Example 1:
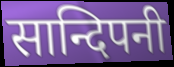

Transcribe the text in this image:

सान्दिपनी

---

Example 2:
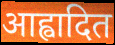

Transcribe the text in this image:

आह्वादित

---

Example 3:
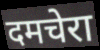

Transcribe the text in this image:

दमचेरा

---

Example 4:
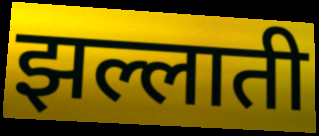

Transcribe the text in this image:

झल्लाती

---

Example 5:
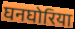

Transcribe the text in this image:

घनघोरिया